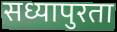
सध्यापुरता